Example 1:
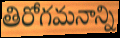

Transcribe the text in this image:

తిరోగమనాన్ని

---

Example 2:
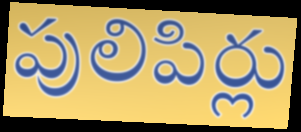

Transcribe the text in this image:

పులిపిర్లు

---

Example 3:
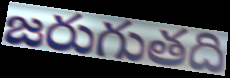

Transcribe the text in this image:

జరుగుతది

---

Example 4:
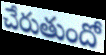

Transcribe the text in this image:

చేరుతుందో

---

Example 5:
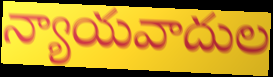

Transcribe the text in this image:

న్యాయవాదుల